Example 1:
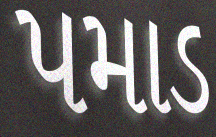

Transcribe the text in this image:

પમાડ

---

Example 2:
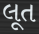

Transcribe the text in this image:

લૂત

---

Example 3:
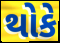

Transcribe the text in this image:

થોકે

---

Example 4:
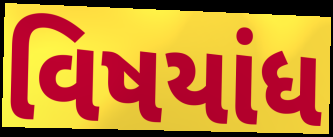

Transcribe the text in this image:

વિષયાંધ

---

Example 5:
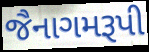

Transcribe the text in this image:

જૈનાગમરૂપી